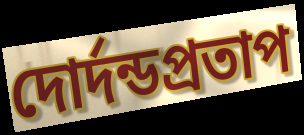
দোর্দন্ডপ্রতাপ